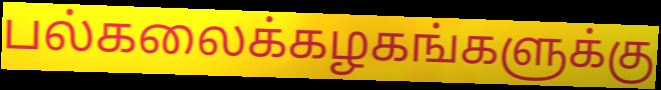
பல்கலைக்கழகங்களுக்கு